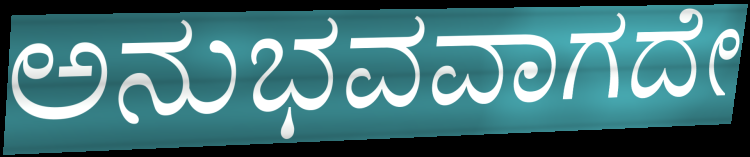
ಅನುಭವವಾಗದೇ